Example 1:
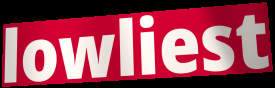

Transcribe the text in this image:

lowliest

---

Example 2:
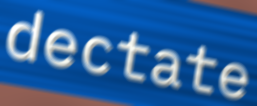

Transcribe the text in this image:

dectate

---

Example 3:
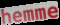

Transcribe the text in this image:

hemme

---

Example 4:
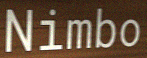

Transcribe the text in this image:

Nimbo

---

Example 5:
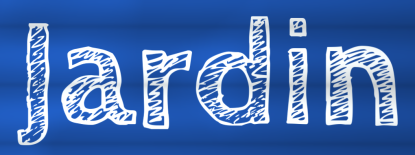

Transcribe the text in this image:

Jardin